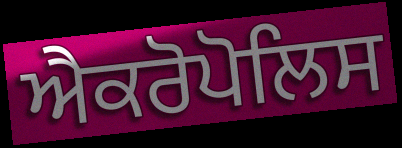
ਐਕਰੋਪੋਲਿਸ